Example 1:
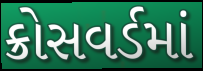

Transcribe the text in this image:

ક્રોસવર્ડમાં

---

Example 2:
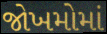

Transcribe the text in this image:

જોખમોમાં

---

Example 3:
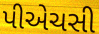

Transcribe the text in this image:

પીએચસી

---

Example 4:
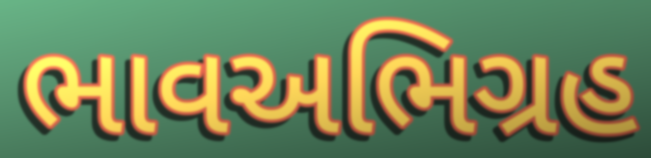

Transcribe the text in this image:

ભાવઅભિગ્રહ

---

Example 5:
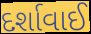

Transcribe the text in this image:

દર્શાવાઈ